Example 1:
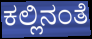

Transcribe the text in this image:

ಕಲ್ಲಿನಂತೆ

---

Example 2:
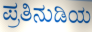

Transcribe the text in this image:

ಪ್ರತಿನುಡಿಯ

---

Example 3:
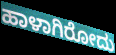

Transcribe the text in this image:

ಹಾಳಾಗಿರೋದು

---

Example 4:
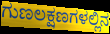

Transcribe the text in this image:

ಗುಣಲಕ್ಷಣಗಳಲ್ಲಿನ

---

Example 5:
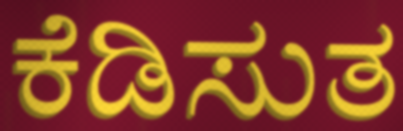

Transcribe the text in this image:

ಕೆಡಿಸುತ